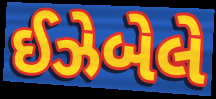
ઈઝેબેલે